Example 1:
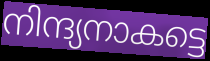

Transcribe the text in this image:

നിന്ദ്യനാകട്ടെ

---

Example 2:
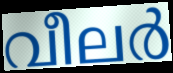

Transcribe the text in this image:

വീലർ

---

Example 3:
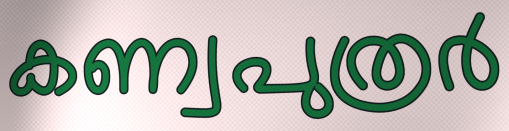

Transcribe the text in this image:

കണ്വപുത്രർ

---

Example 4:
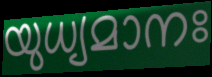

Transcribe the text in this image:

യുധ്യമാനഃ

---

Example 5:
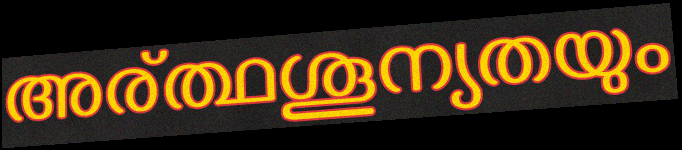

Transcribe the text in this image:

അര്ത്ഥശൂന്യതയും